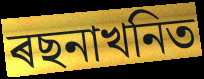
ৰছনাখনিত